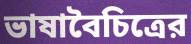
ভাষাবৈচিত্রের